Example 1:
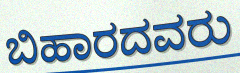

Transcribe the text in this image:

ಬಿಹಾರದವರು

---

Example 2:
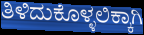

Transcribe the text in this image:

ತಿಳಿದುಕೊಳ್ಳಲಿಕ್ಕಾಗಿ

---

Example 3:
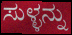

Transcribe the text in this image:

ಸುಳ್ಳನ್ನು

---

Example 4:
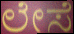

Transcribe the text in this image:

ಲೇಸೆ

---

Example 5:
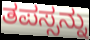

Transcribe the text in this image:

ತಪಸ್ಸನ್ನು